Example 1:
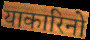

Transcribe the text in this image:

याकारिनो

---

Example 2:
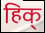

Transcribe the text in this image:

हिक्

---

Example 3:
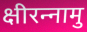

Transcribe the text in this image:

क्षीरन्नामु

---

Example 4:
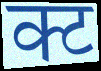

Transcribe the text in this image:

क्ट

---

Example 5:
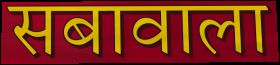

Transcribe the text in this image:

सबावाला